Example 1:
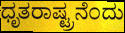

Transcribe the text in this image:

ಧೃತರಾಷ್ಟ್ರನೆಂದು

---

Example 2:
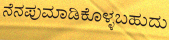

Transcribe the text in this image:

ನೆನಪುಮಾಡಿಕೊಳ್ಳಬಹುದು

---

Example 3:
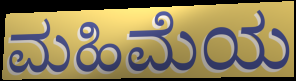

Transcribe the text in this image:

ಮಹಿಮೆಯ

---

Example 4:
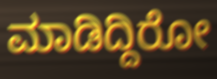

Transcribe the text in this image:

ಮಾಡಿದ್ದಿರೋ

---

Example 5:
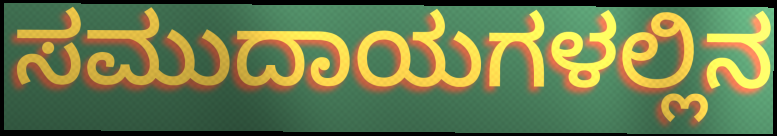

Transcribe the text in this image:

ಸಮುದಾಯಗಳಲ್ಲಿನ